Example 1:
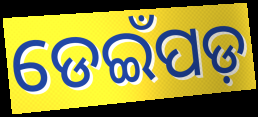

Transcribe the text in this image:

ଡେଇଁପଡ଼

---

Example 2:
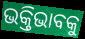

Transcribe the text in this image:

ଭକ୍ତିଭାବକୁ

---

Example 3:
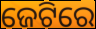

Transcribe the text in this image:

ଜେଟିରେ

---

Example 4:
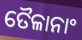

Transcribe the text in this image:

ତୈଳାନାଂ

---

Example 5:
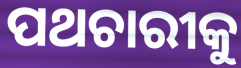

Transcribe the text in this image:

ପଥଚାରୀକୁ